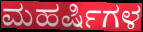
ಮಹರ್ಷಿಗಳ